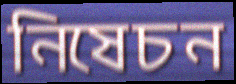
নিষেচন